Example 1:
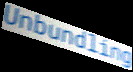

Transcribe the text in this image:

Unbundling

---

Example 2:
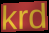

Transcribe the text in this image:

krd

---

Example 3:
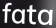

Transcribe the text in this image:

fata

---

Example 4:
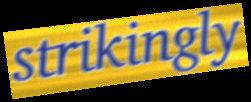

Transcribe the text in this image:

strikingly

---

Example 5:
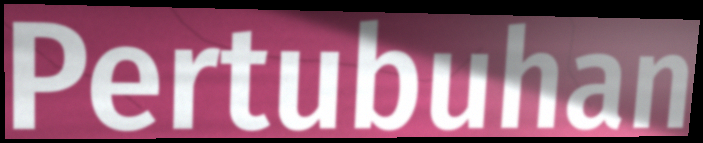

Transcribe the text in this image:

Pertubuhan